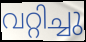
വറ്റിച്ചു